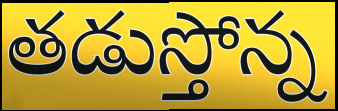
తడుస్తోన్న